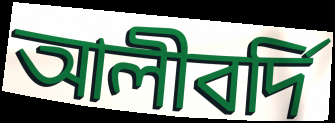
আলীবর্দি